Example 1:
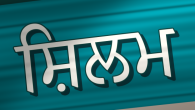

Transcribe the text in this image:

ਸ਼ਿਲਮ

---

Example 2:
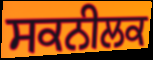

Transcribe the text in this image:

ਸਕਨੀਲਕ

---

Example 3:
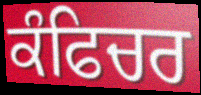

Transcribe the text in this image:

ਕੰਫਿਚਰ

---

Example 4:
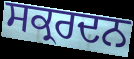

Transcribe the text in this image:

ਸਕ੍ਰਰਦਨ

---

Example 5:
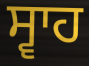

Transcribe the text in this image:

ਸ੍ਵਾਹ